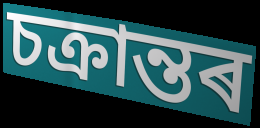
চক্ৰান্তৰ